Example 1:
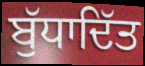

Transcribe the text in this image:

ਬੁੱਧਾਦਿੱਤ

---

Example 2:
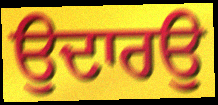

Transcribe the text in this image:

ਉਦਾਰਉ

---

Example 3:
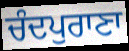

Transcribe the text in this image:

ਚੰਦਪੁਰਾਣਾ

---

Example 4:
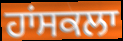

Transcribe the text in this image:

ਹਾਂਸਕਲਾ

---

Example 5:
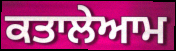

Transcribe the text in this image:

ਕਤਾਲੇਆਮ